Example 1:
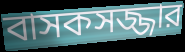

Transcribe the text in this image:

বাসকসজ্জার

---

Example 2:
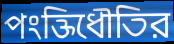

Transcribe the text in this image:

পংক্তিধৌতির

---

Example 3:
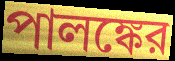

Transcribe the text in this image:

পালঙ্কের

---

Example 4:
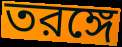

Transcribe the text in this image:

তরঙ্গে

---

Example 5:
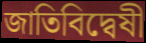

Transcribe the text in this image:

জাতিবিদ্বেষী